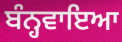
ਬੰਨ੍ਹਵਾਇਆ